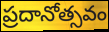
ప్రదానోత్సవం